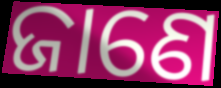
ଜାଣେ